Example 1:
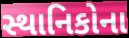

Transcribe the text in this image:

સ્થાનિકોના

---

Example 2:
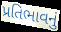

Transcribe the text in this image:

પ્રતિભાવનું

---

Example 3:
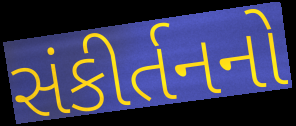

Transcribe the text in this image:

સંકીર્તનનો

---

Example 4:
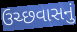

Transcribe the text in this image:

ઉચ્છવાસનું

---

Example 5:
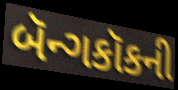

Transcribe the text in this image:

બૅન્ગકૉકની